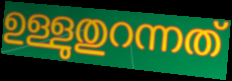
ഉള്ളുതുറന്നത്